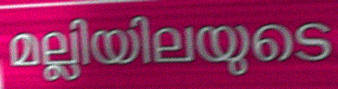
മല്ലിയിലയുടെ